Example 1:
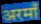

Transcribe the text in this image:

अरमाँ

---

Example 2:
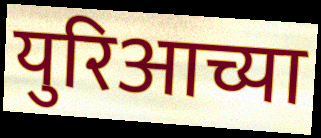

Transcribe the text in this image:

युरिआच्या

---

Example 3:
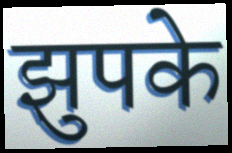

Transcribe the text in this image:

झुपके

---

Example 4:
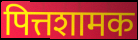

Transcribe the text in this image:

पित्तशामक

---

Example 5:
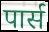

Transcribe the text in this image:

पार्स